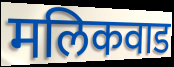
मलिकवाड